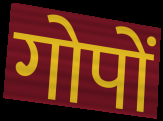
गोपों